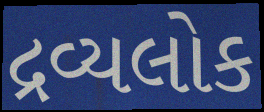
દ્રવ્યલોક